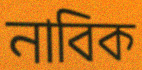
নাবিক